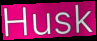
Husk